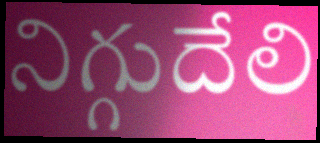
నిగ్గుదేలి